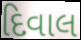
દિવાલ